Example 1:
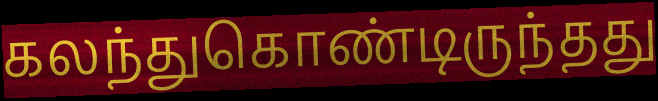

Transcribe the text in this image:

கலந்துகொண்டிருந்தது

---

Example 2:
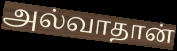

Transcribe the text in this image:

அல்வாதான்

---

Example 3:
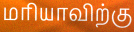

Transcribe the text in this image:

மரியாவிற்கு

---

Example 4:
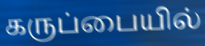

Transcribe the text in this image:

கருப்பையில்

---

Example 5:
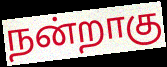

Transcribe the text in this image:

நன்றாகு